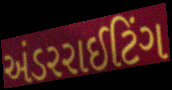
અંડરરાઈટિંગ